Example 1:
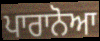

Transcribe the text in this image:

ਪਾਰਾਨੋਆ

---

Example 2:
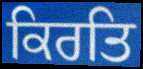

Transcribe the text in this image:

ਕਿਰਤਿ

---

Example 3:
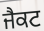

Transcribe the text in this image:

ਜੈਕਟ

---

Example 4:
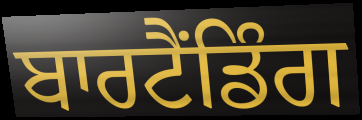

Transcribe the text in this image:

ਬਾਰਟੈਂਡਿੰਗ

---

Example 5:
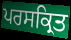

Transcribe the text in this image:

ਪਰਸਕ੍ਰਿਤ